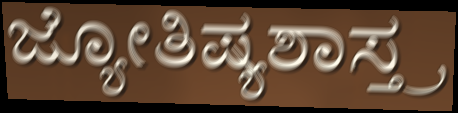
ಜ್ಯೋತಿಷ್ಯಶಾಸ್ತ್ರ